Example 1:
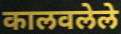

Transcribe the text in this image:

कालवलेले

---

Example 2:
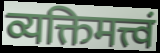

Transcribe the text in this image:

व्यक्तिमत्त्वं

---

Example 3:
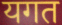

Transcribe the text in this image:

यगत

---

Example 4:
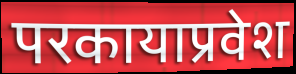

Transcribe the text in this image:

परकायाप्रवेश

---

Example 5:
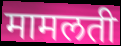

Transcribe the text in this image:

मामलती